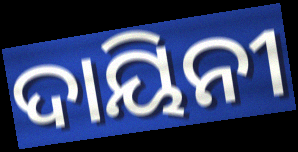
ଦାୟିନୀ